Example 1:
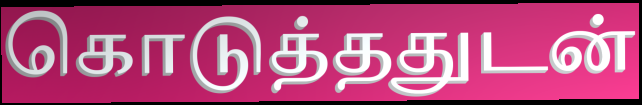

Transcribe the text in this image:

கொடுத்ததுடன்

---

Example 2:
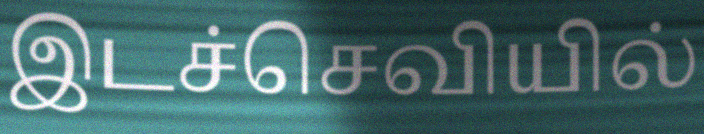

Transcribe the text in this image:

இடச்செவியில்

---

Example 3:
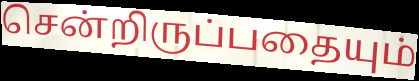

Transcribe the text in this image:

சென்றிருப்பதையும்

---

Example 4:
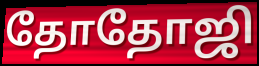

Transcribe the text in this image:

தோதோஜி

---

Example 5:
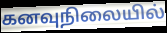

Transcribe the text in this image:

கனவுநிலையில்